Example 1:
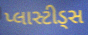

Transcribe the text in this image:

પ્લાસ્ટીડ્સ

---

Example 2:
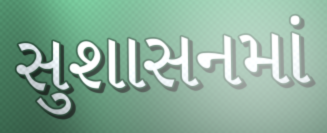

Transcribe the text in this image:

સુશાસનમાં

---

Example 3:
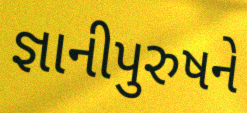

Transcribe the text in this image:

જ્ઞાનીપુરુષને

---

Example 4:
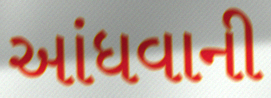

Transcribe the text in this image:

આંધવાની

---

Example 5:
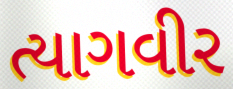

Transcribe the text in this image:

ત્યાગવીર